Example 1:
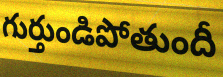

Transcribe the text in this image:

గుర్తుండిపోతుందీ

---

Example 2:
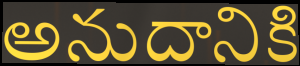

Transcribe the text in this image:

అనుదానికి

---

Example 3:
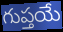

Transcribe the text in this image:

గుప్తయే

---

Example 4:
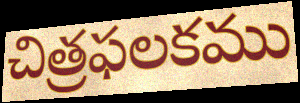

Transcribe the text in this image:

చిత్రఫలకము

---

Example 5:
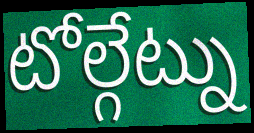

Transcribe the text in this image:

టోల్గేట్ను